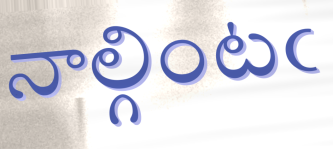
నాల్గింటఁ